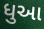
ધુઆ